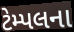
ટેમ્પલના